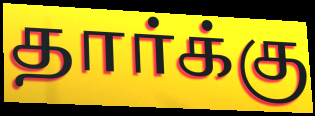
தார்க்கு